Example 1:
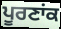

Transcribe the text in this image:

ਪੂਰਣਾਂਕ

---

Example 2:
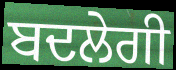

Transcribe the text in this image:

ਬਦਲੇਗੀ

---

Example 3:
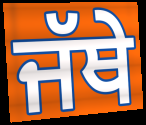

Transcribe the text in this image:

ਜੱਥੇ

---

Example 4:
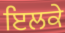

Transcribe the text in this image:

ਇਲਕੇ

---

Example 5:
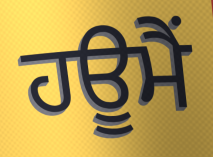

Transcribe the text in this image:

ਹਊਮੈਂ